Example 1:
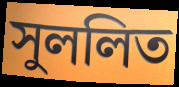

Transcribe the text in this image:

সুললিত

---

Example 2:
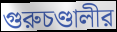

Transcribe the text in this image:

গুরুচণ্ডালীর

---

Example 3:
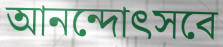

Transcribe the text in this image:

আনন্দোৎসবে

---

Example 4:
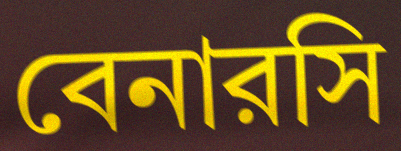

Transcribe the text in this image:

বেনারসি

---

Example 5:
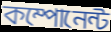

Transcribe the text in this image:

কম্পোনেন্ট